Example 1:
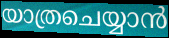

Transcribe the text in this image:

യാത്രചെയ്യാൻ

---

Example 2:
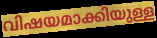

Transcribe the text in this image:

വിഷയമാക്കിയുള്ള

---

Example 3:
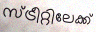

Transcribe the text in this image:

സ്ട്രീറ്റിലേക്ക്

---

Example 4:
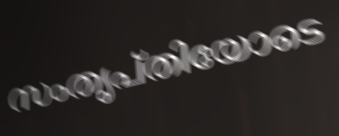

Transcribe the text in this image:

സംതൃപ്തിയോടെ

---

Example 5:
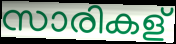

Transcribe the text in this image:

സാരികള്